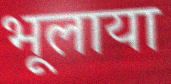
भूलाया